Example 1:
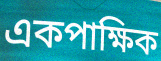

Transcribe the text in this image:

একপাক্ষিক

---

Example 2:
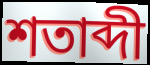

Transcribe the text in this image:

শতাব্দী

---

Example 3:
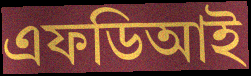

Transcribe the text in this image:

এফডিআই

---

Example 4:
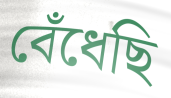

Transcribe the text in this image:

বেঁধেছি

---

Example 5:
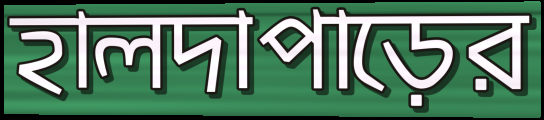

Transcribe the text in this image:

হালদাপাড়ের